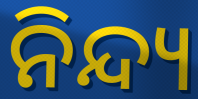
ନିନ୍ଦ୍ୟ